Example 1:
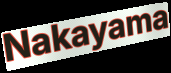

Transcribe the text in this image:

Nakayama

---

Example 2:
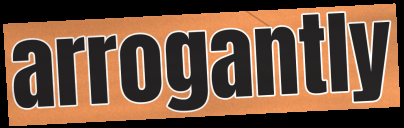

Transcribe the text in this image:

arrogantly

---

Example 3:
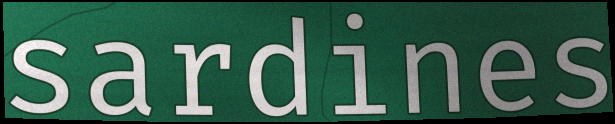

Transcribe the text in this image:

sardines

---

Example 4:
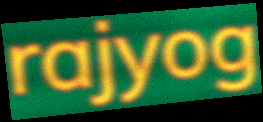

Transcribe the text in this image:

rajyog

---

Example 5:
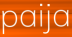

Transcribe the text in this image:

paija